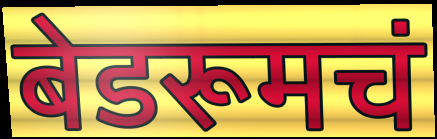
बेडरूमचं